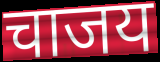
चाजय